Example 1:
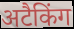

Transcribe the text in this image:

अटैकिंग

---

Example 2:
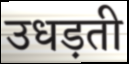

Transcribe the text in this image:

उधड़ती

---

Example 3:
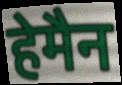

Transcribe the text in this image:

हेमैन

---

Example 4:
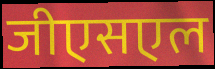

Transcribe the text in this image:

जीएसएल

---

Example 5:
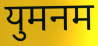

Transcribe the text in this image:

युमनम